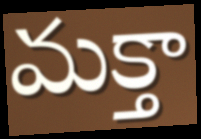
మక్తా